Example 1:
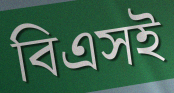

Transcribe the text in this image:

বিএসই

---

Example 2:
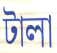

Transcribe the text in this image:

টালা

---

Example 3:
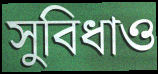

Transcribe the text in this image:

সুবিধাও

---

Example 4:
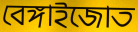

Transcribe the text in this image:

বেঙ্গাইজোত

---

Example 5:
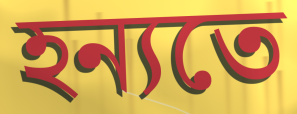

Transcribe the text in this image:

হন্যতে